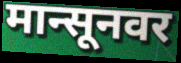
मान्सूनवर